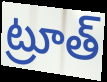
ట్రూత్